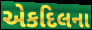
એકદિલના